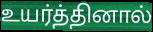
உயர்த்தினால்